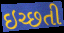
ઇચ્છતી